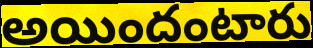
అయిందంటారు